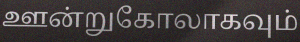
ஊன்றுகோலாகவும்